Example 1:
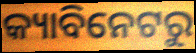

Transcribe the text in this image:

କ୍ୟାବିନେଟରୁ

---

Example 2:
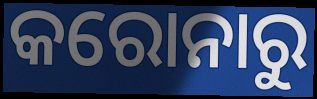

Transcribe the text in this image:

କରୋନାରୁ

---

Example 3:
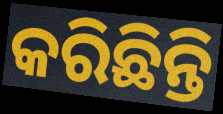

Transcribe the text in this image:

କରିଛିନ୍ତି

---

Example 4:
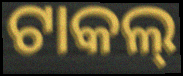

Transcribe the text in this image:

ଟାକଲ୍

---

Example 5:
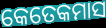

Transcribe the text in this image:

କେତେକମାସ